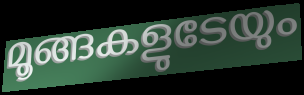
മൂങ്ങകളുടേയും